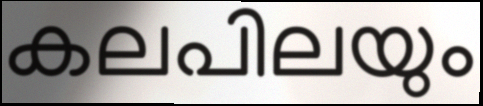
കലപിലയും